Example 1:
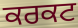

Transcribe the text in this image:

ਕਰਕਟ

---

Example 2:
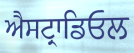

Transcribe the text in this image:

ਐਸਟ੍ਰਾਡਿਓਲ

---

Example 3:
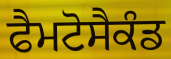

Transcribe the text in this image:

ਫੈਮਟੋਸੈਕੰਡ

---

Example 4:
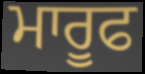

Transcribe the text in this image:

ਮਾਰੂਫ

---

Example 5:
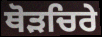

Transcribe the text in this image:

ਥੋੜਚਿਰੇ